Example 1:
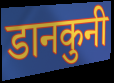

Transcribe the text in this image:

डानकुनी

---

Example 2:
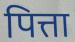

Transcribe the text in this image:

पित्ता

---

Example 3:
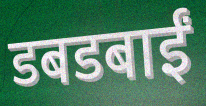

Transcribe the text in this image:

डबडबाईं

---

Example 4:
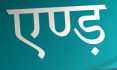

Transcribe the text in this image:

एण्ड़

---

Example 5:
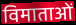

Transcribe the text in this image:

विमाताओं